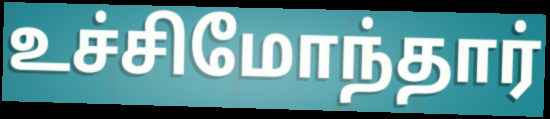
உச்சிமோந்தார்